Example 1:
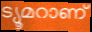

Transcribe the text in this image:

ട്യൂമറാണ്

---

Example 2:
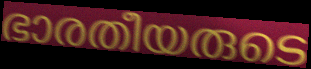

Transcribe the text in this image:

ഭാരതീയരുടെ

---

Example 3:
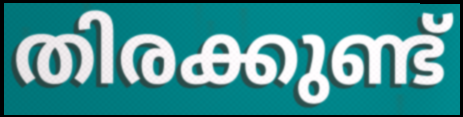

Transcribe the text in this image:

തിരക്കുണ്ട്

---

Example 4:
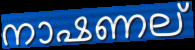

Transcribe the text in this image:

നാഷണല്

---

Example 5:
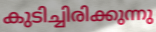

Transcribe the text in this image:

കുടിച്ചിരിക്കുന്നു